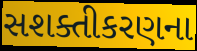
સશક્તીકરણના